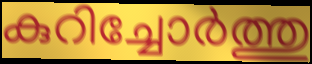
കുറിച്ചോർത്തു